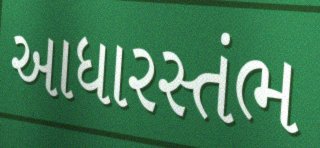
આધારસ્તંભ